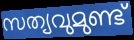
സത്യവുമുണ്ട്